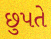
છુપતે